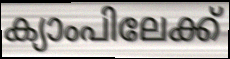
ക്യാംപിലേക്ക്